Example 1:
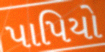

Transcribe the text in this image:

પાપિયો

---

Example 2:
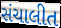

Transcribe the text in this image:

સંચાલીત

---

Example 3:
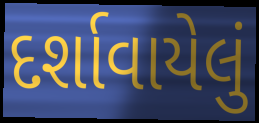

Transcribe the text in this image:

દર્શાવાયેલું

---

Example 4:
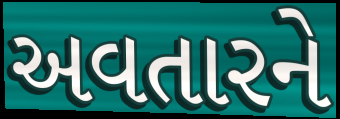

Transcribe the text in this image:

અવતારને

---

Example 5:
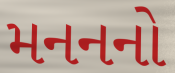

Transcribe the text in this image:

મનનનો